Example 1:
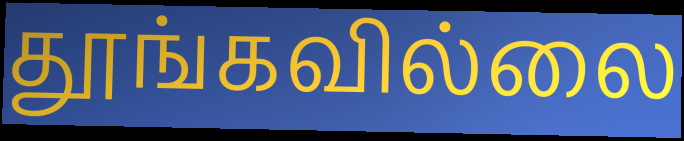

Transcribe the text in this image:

தூங்கவில்லை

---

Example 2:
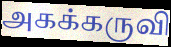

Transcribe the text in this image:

அகக்கருவி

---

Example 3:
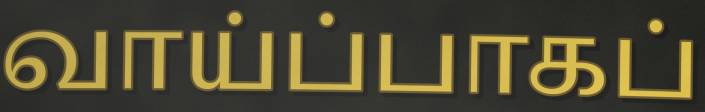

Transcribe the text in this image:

வாய்ப்பாகப்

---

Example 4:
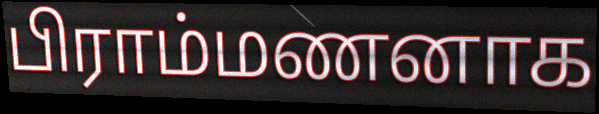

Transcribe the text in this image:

பிராம்மணனாக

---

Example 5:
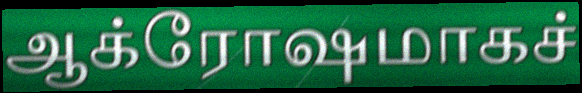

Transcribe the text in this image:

ஆக்ரோஷமாகச்